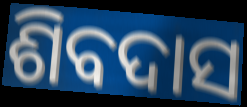
ଶିବଦାସ